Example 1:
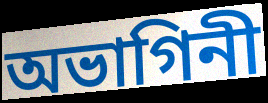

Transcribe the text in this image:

অভাগিনী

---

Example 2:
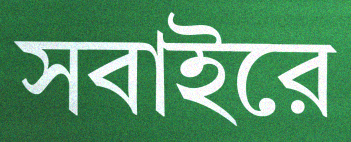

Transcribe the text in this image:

সবাইরে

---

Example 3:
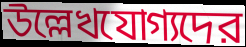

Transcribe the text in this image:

উল্লেখযোগ্যদের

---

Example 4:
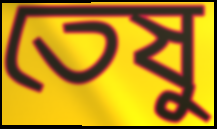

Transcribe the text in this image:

তেষু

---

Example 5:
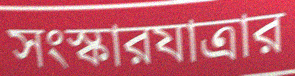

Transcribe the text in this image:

সংস্কারযাত্রার